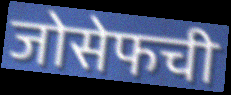
जोसेफची